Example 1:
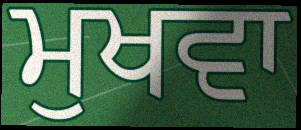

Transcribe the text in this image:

ਮੁਖਵਾ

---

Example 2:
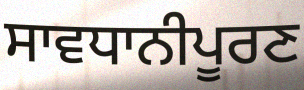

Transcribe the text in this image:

ਸਾਵਧਾਨੀਪੂਰਣ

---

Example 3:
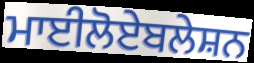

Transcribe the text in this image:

ਮਾਈਲੋਏਬਲੇਸ਼ਨ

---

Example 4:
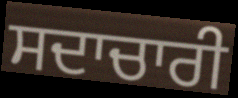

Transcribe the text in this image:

ਸਦਾਚਾਰੀ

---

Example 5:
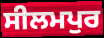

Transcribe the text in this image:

ਸੀਲਮਪੁਰ